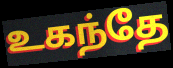
உகந்தே